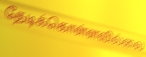
தேடிக்கொள்ளவில்லை